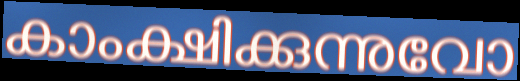
കാംക്ഷിക്കുന്നുവോ